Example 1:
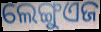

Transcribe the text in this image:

ଲେଙ୍ଗୁଏଜ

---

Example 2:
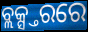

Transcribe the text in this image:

ବ୍ଲକ୍ସ୍ତରରେ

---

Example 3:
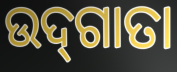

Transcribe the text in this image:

ଉଦ୍‌ଗାତା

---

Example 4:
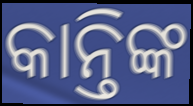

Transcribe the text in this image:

କାନ୍ତିଙ୍କ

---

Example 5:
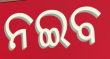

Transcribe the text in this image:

ନଇବ